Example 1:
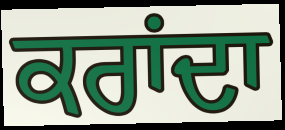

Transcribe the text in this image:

ਕਰਾਂਦਾ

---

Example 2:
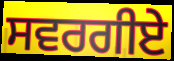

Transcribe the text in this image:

ਸਵਰਗੀਏ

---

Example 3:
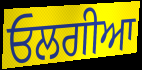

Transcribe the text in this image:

ਓਲਗੀਆ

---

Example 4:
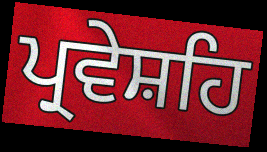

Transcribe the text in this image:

ਪ੍ਰਵੇਸ਼ਹਿ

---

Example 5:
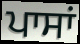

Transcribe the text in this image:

ਪਾਸਾਂ